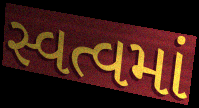
સ્વત્વમાં